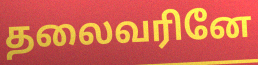
தலைவரினே